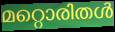
മറ്റൊരിതൾ